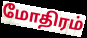
மோதிரம்